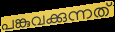
പങ്കുവക്കുന്നത്